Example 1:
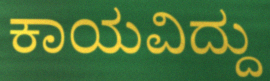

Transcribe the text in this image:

ಕಾಯವಿದ್ದು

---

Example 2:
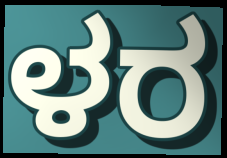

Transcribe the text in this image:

ಳರ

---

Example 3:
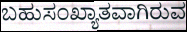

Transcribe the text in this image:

ಬಹುಸಂಖ್ಯಾತವಾಗಿರುವ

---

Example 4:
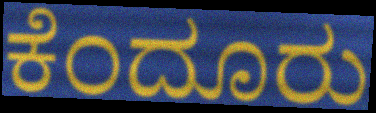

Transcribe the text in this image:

ಕೆಂದೂರು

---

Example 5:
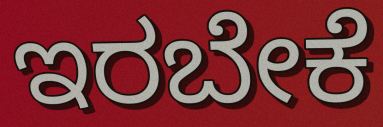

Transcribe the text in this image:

ಇರಬೇಕೆ